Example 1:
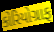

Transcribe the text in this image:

કોરિયોગ્રાફ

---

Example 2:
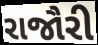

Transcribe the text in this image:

રાજૌરી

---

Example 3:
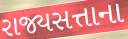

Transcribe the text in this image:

રાજ્યસત્તાના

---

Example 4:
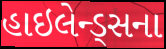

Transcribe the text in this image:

હાઇલેન્ડ્સના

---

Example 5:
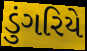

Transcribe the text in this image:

ડુંગરિયે